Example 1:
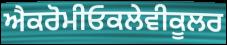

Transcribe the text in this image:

ਐਕਰੋਮੀਓਕਲੇਵੀਕੂਲਰ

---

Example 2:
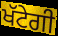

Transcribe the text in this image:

ਖੱਟੇਗੀ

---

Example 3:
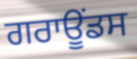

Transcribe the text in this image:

ਗਰਾਊਂਡਸ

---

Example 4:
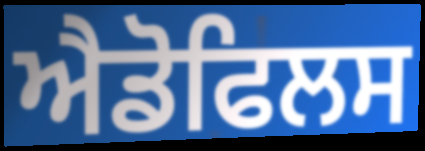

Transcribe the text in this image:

ਐਡੋਫਿਲਸ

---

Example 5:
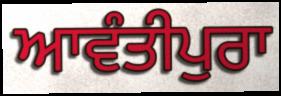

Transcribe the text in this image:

ਆਵੰਤੀਪੁਰਾ